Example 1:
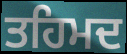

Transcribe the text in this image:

ਤਹਿਮਦ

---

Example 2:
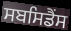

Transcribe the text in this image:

ਸਬਸਿਡੈਂਸ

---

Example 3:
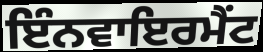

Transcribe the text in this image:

ਇੰਨਵਾਇਰਮੈਂਟ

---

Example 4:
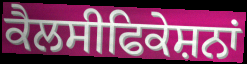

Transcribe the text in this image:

ਕੈਲਸੀਫਿਕੇਸ਼ਨਾਂ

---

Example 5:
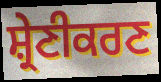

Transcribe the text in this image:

ਸ਼੍ਰੇਣੀਕਰਣ